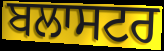
ਬਲਾਸਟਰ